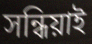
সন্ধিয়াই